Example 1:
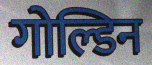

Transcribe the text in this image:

गोल्डिन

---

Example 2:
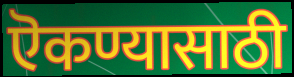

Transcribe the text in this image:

ऎकण्यासाठी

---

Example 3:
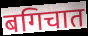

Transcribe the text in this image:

बगिचात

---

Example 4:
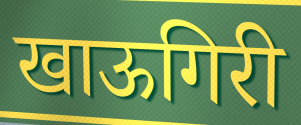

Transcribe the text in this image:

खाऊगिरी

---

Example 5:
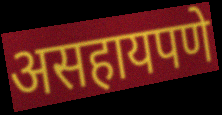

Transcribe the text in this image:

असहायपणे